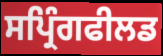
ਸਪ੍ਰਿੰਗਫੀਲਡ